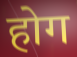
होग